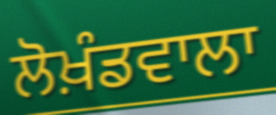
ਲੋਖ਼ੰਡਵਾਲਾ